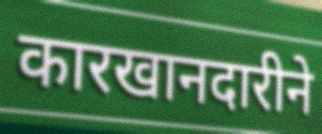
कारखानदारीने